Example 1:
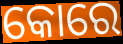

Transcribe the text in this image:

କୋରେ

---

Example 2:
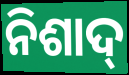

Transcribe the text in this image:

ନିଶାଦ୍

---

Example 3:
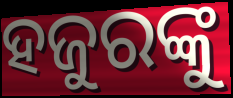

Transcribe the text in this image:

ହଜୁରଙ୍କୁ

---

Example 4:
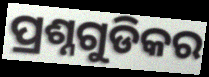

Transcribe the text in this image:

ପ୍ରଶ୍ନଗୁଡିକର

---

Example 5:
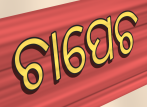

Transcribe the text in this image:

ଚାପେଚ